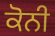
ਕੋਨੀ